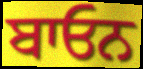
ਬਾਓਨ